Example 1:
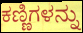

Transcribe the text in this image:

ಕಣ್ಣಿಗಳನ್ನು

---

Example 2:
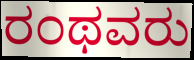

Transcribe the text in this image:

ರಂಥವರು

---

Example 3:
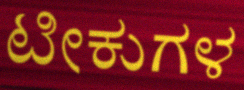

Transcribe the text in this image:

ಟೀಕುಗಳ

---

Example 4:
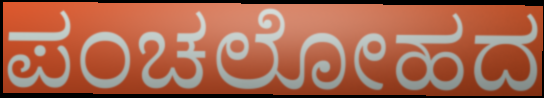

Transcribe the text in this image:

ಪಂಚಲೋಹದ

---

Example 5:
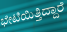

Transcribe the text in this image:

ಭೇಟಿಯಿತ್ತಿದ್ದಾರೆ